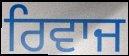
ਰਿਵਾਜ